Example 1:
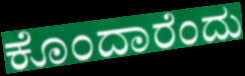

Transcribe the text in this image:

ಕೊಂದಾರೆಂದು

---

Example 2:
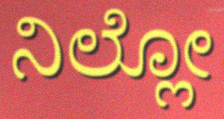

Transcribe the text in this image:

ನಿಲ್ಲೋ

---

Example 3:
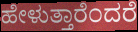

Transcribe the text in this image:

ಹೇಳುತ್ತಾರೆಂದರೆ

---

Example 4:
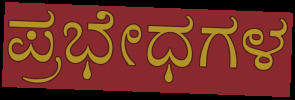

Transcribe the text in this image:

ಪ್ರಭೇಧಗಳ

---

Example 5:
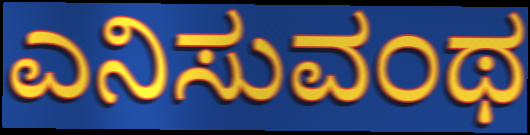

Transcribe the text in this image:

ಎನಿಸುವಂಥ